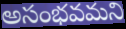
అసంభవమని